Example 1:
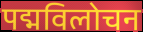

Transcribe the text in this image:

पद्मविलोचन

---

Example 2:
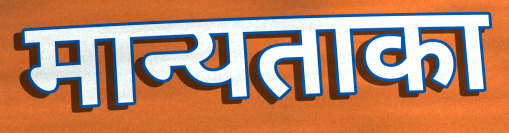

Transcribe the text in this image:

मान्यताका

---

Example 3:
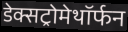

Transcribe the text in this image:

डेक्सट्रोमेथॉर्फन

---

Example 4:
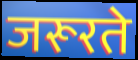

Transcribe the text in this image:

जरूरते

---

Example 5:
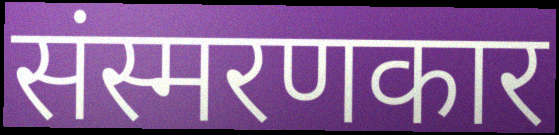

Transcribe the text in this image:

संस्मरणकार